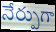
నేర్పుగా